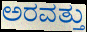
ಅರವತ್ತು